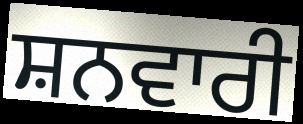
ਸ਼ਨਵਾਰੀ